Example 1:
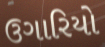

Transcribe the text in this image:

ઉગારિયો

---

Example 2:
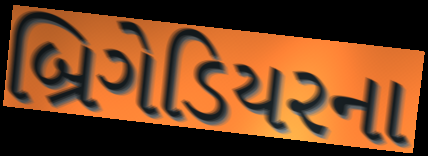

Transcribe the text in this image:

બ્રિગેડિયરના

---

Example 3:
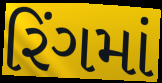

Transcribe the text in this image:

રિંગમાં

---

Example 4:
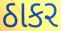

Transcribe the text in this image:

ઠાકર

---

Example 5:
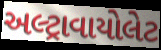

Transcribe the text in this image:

અલ્ટ્રાવાયોલેટ